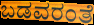
ಬಡವರಂತೆ